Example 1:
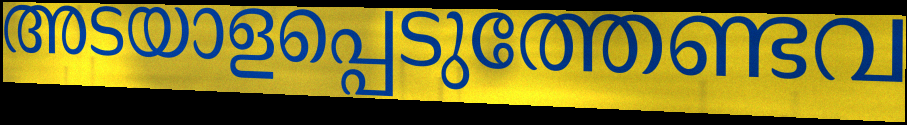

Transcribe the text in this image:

അടയാളപ്പെടുത്തേണ്ടവ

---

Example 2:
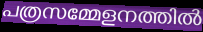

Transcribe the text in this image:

പത്രസമ്മേളനത്തിൽ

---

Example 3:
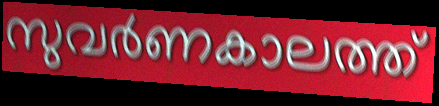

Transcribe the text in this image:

സുവർണകാലത്ത്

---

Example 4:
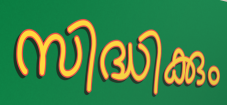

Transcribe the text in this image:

സിദ്ധിക്കും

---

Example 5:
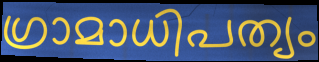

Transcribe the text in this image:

ഗ്രാമാധിപത്യം